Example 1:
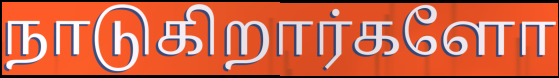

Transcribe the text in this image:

நாடுகிறார்களோ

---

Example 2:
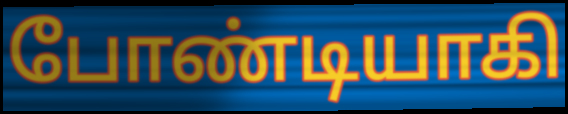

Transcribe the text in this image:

போண்டியாகி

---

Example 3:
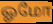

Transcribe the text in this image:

ஓமோ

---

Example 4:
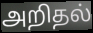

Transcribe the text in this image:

அறிதல்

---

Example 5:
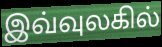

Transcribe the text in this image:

இவ்வுலகில்